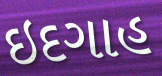
ઇદગાહ